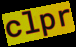
clpr